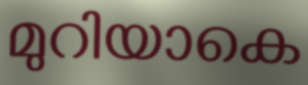
മുറിയാകെ